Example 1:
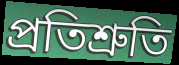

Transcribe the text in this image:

প্ৰতিশ্ৰুতি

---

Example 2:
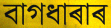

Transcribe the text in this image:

বাগধাৰাৰ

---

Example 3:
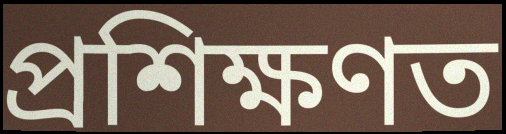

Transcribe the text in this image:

প্ৰশিক্ষণত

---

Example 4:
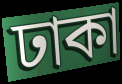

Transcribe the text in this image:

ঢাকা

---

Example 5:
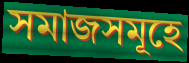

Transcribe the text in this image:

সমাজসমূহে